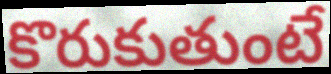
కొరుకుతుంటే